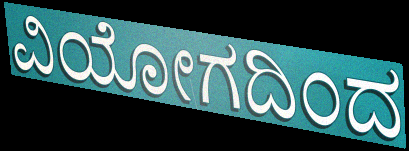
ವಿಯೋಗದಿಂದ